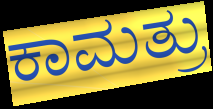
ಕಾಮತ್ರು